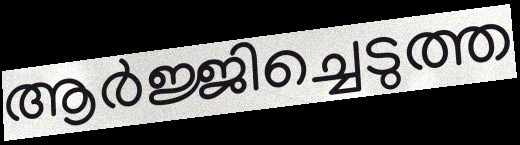
ആർജ്ജിച്ചെടുത്ത